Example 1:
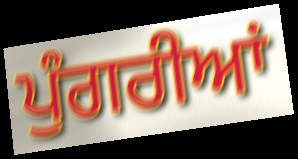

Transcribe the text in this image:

ਪੁੰਗਰੀਆਂ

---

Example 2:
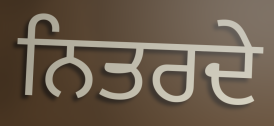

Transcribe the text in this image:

ਨਿਤਰਦੇ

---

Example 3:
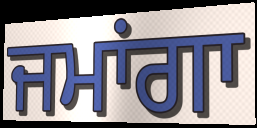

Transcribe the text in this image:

ਜਮਾਂਗਾ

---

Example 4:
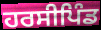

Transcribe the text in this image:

ਹਰਸੀਪਿੰਡ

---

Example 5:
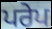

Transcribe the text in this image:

ਪਰੇਪ